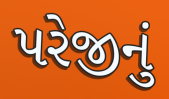
પરેજીનું